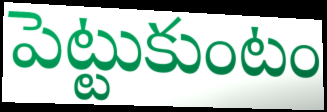
పెట్టుకుంటం